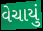
વેચાયું